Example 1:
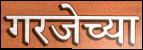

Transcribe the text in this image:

गरजेच्या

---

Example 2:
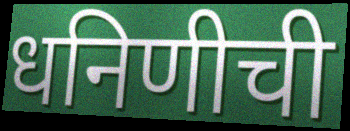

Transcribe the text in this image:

धनिणीची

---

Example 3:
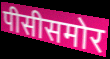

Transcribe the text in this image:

पीसीसमोर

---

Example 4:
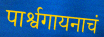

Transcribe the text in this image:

पार्श्वगायनाचं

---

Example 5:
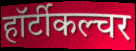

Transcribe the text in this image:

हॉर्टीकल्चर